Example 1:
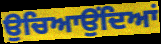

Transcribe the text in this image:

ਉਚਿਆਉਂਦਿਆਂ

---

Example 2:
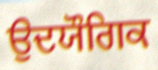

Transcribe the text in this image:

ਉਦਯੌਗਿਕ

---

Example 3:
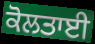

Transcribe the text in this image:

ਕੋਲਤਾਈ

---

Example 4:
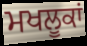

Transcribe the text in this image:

ਮਖਲੂਕਾਂ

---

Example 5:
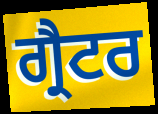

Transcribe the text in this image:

ਗ੍ਰੈਟਰ